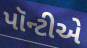
પૉન્ટીએ